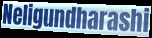
Neligundharashi